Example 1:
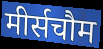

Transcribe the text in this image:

मीर्सचौम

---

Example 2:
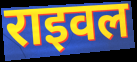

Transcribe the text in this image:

राइवल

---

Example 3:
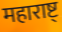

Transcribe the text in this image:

महाराष्ट्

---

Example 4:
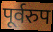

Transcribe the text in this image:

पूर्वरुप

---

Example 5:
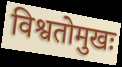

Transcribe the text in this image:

विश्वतोमुखः